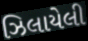
ઝિલાયેલી